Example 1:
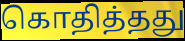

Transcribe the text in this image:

கொதித்தது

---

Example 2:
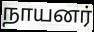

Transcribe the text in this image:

நாயனர்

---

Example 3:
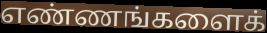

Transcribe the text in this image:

எண்ணங்களைக்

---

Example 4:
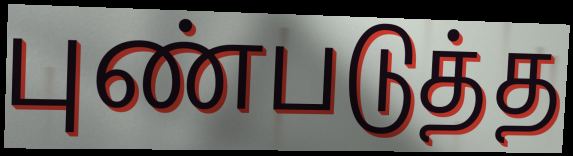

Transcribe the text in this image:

புண்படுத்த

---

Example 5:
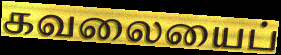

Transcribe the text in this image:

கவலையைப்